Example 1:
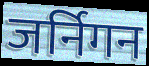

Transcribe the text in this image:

जर्निगन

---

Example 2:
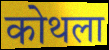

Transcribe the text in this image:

कोथला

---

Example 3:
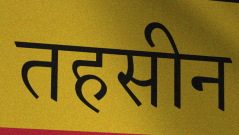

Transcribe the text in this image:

तहसीन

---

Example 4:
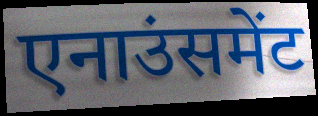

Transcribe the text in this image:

एनाउंसमेंट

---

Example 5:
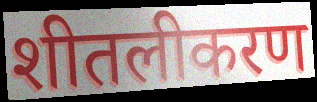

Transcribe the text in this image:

शीतलीकरण